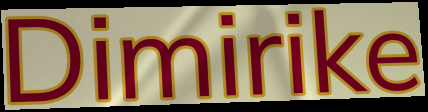
Dimirike